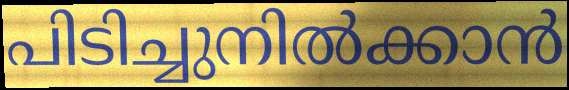
പിടിച്ചുനിൽക്കാൻ